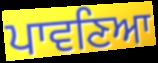
ਪਾਵਣਿਆ